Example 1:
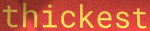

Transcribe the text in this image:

thickest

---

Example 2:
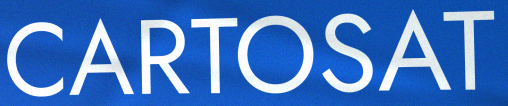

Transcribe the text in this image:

CARTOSAT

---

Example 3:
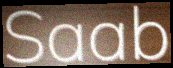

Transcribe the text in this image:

Saab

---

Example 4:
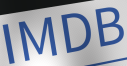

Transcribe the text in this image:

IMDB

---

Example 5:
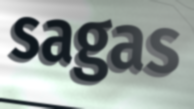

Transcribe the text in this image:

sagas